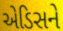
એડિસને